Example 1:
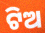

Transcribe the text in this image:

ଟିଅ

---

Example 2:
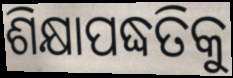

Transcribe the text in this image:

ଶିକ୍ଷାପଦ୍ଧତିକୁ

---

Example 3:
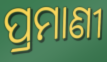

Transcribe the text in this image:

ପ୍ରମାଣୀ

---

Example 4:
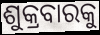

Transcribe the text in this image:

ଶୁକ୍ରବାରକୁ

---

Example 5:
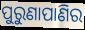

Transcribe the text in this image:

ପୁରୁଣାପାଣିର